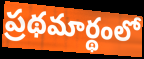
ప్రథమార్థంలో